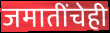
जमातींचेही